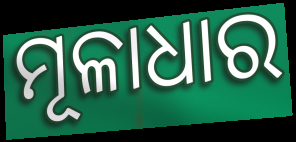
ମୂଳାଧାର